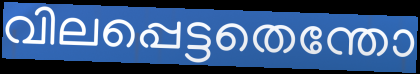
വിലപ്പെട്ടതെന്തോ